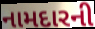
નામદારની